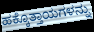
ಹಕ್ಕೊತ್ತಾಯಗಳನ್ನು